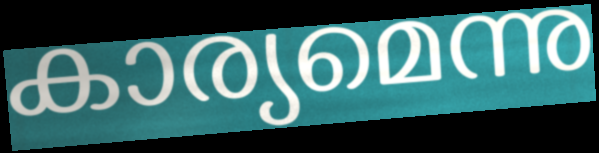
കാര്യമെന്നു